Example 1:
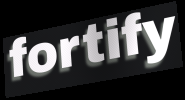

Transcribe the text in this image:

fortify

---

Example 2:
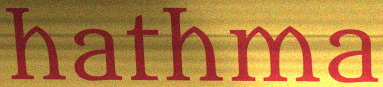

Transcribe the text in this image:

hathma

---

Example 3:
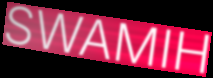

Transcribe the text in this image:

SWAMIH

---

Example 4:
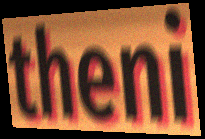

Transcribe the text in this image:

theni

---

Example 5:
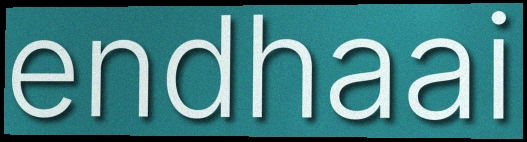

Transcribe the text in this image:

endhaai